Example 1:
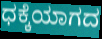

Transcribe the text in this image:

ಧಕ್ಕೆಯಾಗದ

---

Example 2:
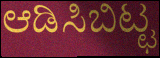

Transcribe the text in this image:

ಆಡಿಸಿಬಿಟ್ಟ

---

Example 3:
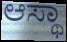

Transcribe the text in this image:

ಆಸ್ಥಾ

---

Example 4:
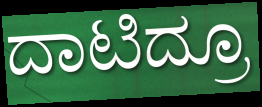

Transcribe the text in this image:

ದಾಟಿದ್ರೂ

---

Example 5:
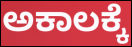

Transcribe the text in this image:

ಅಕಾಲಕ್ಕೆ